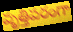
వృత్తిపరంగా